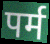
पर्म